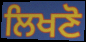
ਲਿਖਣੋ